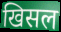
खिसल